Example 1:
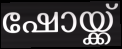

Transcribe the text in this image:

ഷോയ്ക്ക്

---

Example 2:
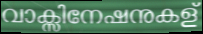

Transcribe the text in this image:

വാക്സിനേഷനുകള്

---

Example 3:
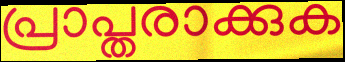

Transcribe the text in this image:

പ്രാപ്തരാക്കുക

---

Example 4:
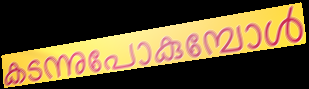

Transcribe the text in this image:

കടന്നുപോകുമ്പോൾ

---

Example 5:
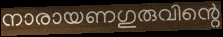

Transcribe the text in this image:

നാരായണഗുരുവിന്റെ